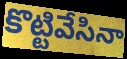
కొట్టివేసినా